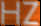
HZ